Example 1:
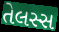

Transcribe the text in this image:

તેલસ્સ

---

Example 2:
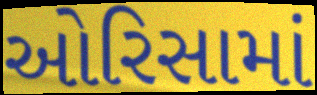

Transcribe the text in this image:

ઓરિસામાં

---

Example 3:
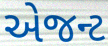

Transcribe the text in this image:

એજન્ટ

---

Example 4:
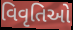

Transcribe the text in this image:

વિવૃતિઓ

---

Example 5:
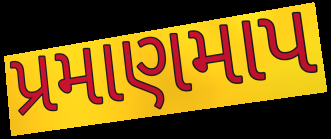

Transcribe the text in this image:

પ્રમાણમાપ